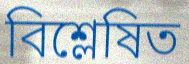
বিশ্লেষিত